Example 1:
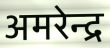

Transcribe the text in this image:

अमरेन्द्र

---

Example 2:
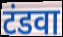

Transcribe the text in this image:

टंडवा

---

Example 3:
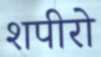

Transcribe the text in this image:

शपीरो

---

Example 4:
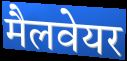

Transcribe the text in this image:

मैलवेयर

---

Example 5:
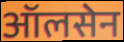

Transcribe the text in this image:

ऑलसेन